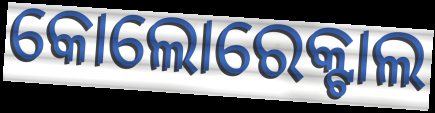
କୋଲୋରେକ୍ଟାଲ